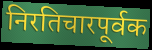
निरतिचारपूर्वक